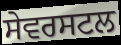
ਸੇਵਰਸਟਲ